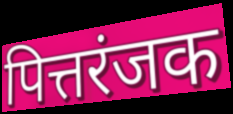
पित्तरंजक